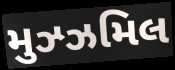
મુઝ્ઝમિલ